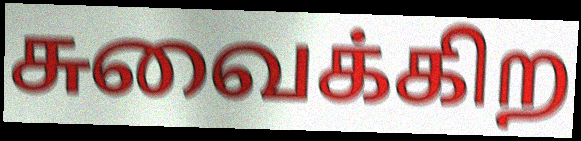
சுவைக்கிற